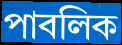
পাবলিক